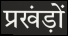
प्रखंड़ों